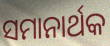
ସମାନାର୍ଥକ